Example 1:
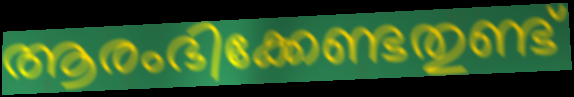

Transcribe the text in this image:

ആരംഭിക്കേണ്ടതുണ്ട്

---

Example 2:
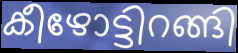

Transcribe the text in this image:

കീഴോട്ടിറങ്ങി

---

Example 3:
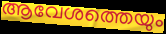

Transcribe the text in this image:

ആവേശത്തെയും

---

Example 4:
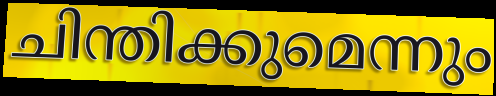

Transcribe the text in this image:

ചിന്തിക്കുമെന്നും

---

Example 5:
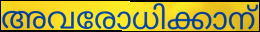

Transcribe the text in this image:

അവരോധിക്കാന്